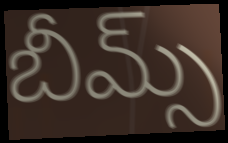
బీమ్స్